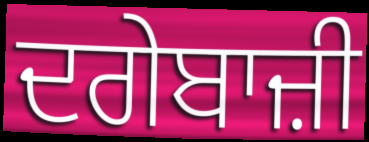
ਦਗੇਬਾਜ਼ੀ